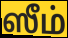
ஸீம்